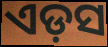
ଏଡ଼ସ